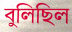
বুলিছিল